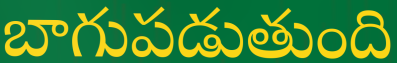
బాగుపడుతుంది